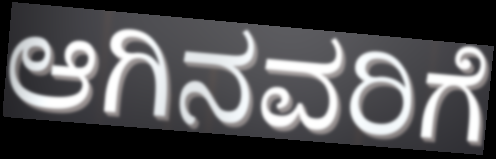
ಆಗಿನವರಿಗೆ